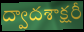
ద్వాదశాక్షరీ